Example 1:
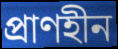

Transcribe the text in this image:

প্রাণহীন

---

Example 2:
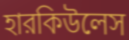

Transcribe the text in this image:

হারকিউলেস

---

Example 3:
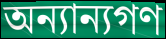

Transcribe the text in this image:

অন্যান্যগণ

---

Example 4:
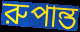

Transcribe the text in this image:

রুপান্ত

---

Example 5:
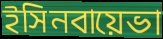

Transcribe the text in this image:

ইসিনবায়েভা